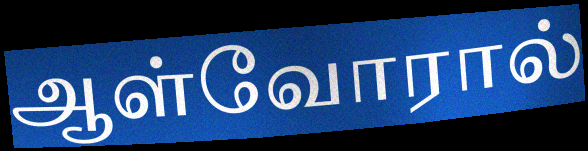
ஆள்வோரால்